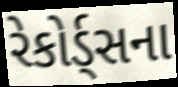
રેકોર્ડ્સના